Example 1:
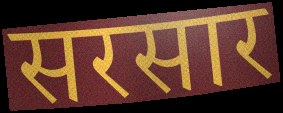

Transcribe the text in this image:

सरसार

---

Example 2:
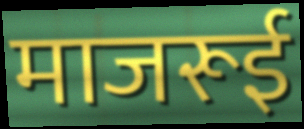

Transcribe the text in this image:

माजरूई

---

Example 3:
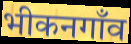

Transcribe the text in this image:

भीकनगाँव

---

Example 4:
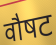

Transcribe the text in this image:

वौषट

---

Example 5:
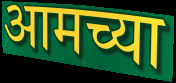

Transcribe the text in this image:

आमच्या